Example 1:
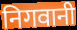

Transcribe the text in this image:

निगवानी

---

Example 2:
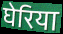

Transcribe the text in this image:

घेरिया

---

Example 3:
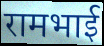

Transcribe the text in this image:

रामभाई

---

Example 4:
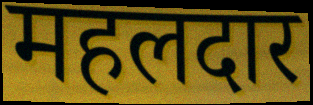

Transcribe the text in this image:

महलदार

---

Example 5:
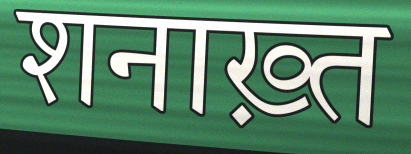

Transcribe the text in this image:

शनाख़्त